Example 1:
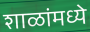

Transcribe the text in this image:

शाळांमध्ये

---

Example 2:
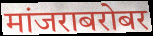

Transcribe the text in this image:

मांजराबरोबर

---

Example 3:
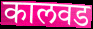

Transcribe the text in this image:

कालवड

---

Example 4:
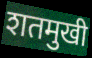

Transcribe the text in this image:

शतमुखी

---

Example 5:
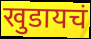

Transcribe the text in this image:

खुडायचं